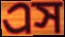
এস